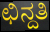
ಛಿನ್ದತಿ